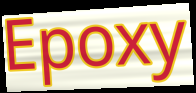
Epoxy